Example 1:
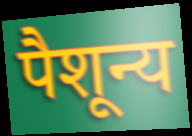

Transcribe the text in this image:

पैशून्य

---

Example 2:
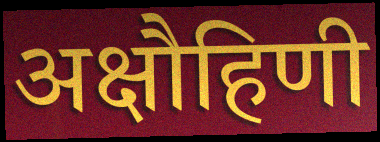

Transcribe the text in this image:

अक्षौहिणी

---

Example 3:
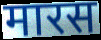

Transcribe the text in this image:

मारस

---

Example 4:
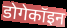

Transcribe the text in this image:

डोगेकॉइन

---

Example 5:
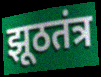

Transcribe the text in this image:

झूठतंत्र